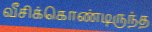
வீசிக்கொண்டிருந்த